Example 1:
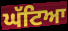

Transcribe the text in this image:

ਘੱਟਿਆ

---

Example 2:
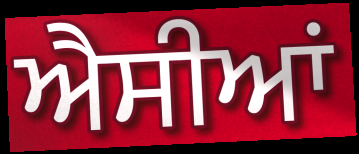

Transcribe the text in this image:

ਐਸੀਆਂ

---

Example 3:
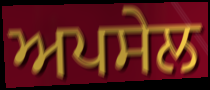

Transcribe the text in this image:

ਅਪਸੇਲ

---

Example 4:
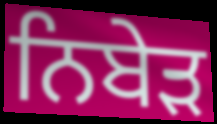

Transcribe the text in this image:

ਨਿਬੇੜ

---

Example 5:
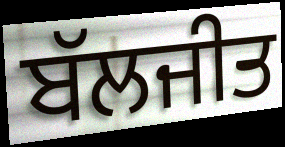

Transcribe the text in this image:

ਬੱਲਜੀਤ